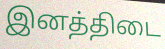
இனத்திடை